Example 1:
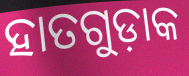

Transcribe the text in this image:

ହାତଗୁଡ଼ାକ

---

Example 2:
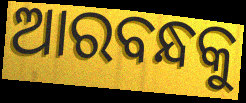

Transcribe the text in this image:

ଆରବନ୍ଧକୁ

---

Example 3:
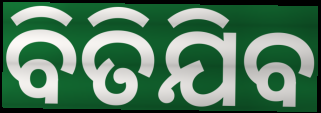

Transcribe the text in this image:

ବିତିଯିବ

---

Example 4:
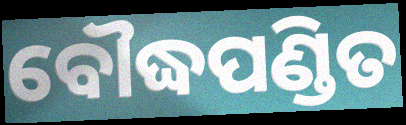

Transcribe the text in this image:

ବୌଦ୍ଧପଣ୍ଡିତ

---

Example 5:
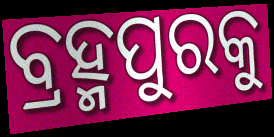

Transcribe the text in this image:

ବ୍ରହ୍ମପୁରକୁ